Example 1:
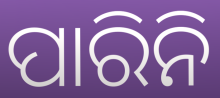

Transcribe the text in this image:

ପାରିନି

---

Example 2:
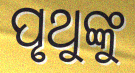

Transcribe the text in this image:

ପୃଥୁଙ୍କୁ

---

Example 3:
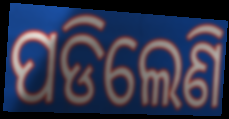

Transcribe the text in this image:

ପଡିଲେଣି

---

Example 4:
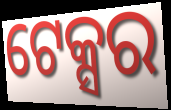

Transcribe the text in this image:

ଟେକ୍ସର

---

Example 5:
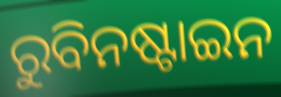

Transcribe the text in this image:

ରୁବିନଷ୍ଟାଇନ